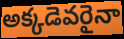
అక్కడెవరైనా